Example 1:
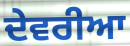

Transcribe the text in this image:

ਦੇਵਰੀਆ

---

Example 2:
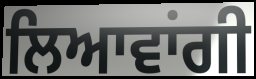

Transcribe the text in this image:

ਲਿਆਵਾਂਗੀ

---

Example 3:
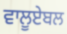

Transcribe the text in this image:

ਵਾਲੂਏਬਲ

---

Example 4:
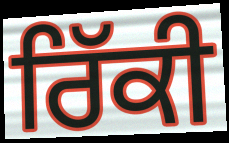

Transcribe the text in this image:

ਰਿੱਕੀ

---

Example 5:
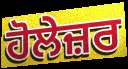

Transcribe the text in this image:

ਹੋਲੇਜ਼ਰ